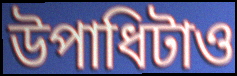
উপাধিটাও